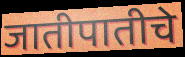
जातीपातीचे